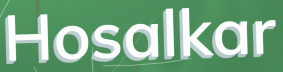
Hosalkar